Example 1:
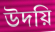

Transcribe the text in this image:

উদয়ি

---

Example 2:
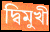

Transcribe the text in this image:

দ্বিমুখী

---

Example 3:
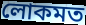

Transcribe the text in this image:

লোকমত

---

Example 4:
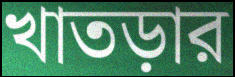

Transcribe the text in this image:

খাতড়ার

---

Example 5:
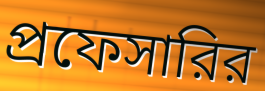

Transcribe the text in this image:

প্রফেসারির